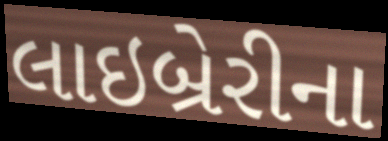
લાઇબ્રેરીના